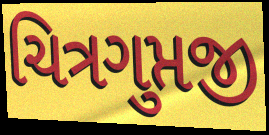
ચિત્રગુપ્તજી